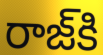
రాజ్‌కి